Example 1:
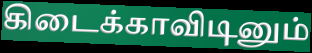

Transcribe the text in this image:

கிடைக்காவிடினும்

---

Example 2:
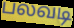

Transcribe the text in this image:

பலவடி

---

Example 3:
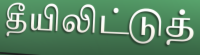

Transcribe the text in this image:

தீயிலிட்டுத்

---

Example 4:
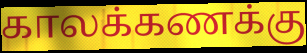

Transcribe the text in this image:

காலக்கணக்கு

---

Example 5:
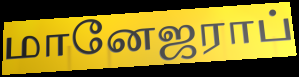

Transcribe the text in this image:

மானேஜராப்